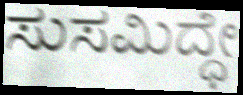
ಸುಸಮಿದ್ಧೇ